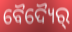
ବୈଦ୍ୟୈର୍